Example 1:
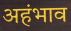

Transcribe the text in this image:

अहंभाव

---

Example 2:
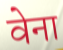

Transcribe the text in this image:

वेना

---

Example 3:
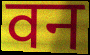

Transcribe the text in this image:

वन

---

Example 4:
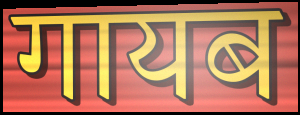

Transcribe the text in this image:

गायब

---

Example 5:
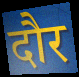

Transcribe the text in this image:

दौर